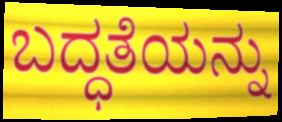
ಬದ್ಧತೆಯನ್ನು